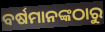
ବର୍ଷମାନଙ୍କଠାରୁ